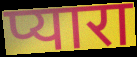
प्यारा